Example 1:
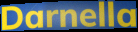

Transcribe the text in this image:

Darnella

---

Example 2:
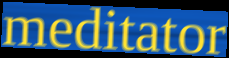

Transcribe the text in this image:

meditator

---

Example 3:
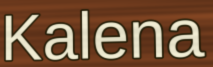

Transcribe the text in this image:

Kalena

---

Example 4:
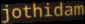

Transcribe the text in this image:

jothidam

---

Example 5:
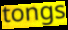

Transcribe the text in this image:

tongs